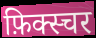
फ़िक्स्चर